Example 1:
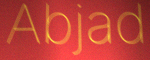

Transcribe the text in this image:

Abjad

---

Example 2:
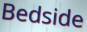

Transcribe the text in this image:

Bedside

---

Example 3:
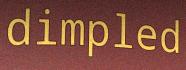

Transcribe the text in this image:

dimpled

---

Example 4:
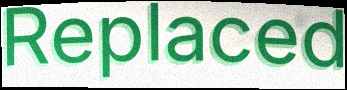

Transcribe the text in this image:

Replaced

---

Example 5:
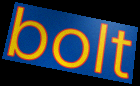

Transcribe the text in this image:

bolt